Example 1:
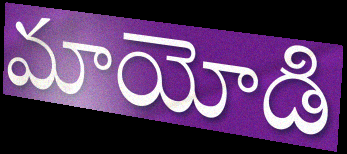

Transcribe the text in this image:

మాయోడి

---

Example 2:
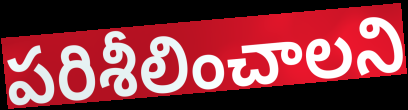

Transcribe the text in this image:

పరిశీలించాలని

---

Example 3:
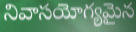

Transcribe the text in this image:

నివాసయోగ్యమైన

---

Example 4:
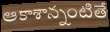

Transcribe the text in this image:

ఆకాశాన్నంటితే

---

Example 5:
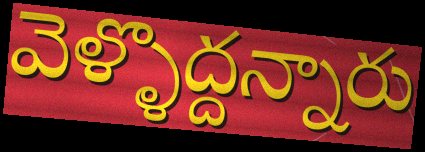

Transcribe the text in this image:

వెళ్ళొద్దన్నారు